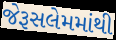
જેરૂસલેમમાંથી